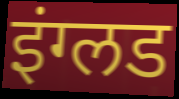
इंग्लड